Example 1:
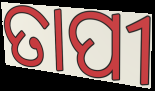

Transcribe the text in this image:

ତାପୀ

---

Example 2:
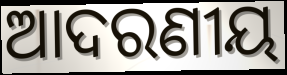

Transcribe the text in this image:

ଆଦରଣୀୟ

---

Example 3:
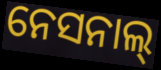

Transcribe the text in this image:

ନେସନାଲ୍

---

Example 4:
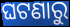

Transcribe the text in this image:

ଘଟଣାରୁ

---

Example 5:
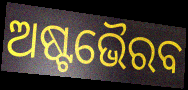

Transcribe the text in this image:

ଅଷ୍ଟଭୈରବ